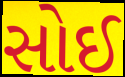
સોઈ